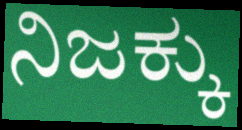
ನಿಜಕ್ಕು